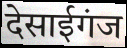
देसाईगंज